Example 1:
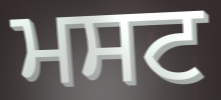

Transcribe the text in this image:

ਮਸਟ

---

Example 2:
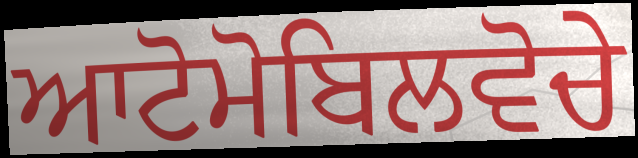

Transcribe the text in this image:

ਆਟੋਮੋਬਿਲਵੋਚੇ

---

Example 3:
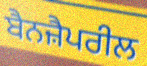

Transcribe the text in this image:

ਬੈਨਜ਼ੈਪਰੀਲ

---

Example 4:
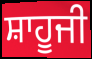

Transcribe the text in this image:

ਸ਼ਾਹੂਜੀ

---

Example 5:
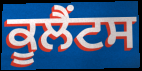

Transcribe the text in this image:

ਕੂਲੈਂਟਸ